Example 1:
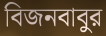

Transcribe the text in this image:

বিজনবাবুর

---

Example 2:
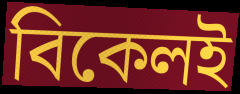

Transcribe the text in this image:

বিকেলই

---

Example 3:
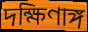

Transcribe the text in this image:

দক্ষিণাঙ্গ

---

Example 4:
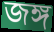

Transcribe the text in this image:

জঙ্গ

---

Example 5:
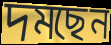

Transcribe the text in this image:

দমছেন